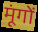
मूंगों